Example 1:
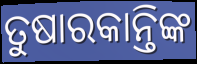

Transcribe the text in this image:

ତୁଷାରକାନ୍ତିଙ୍କ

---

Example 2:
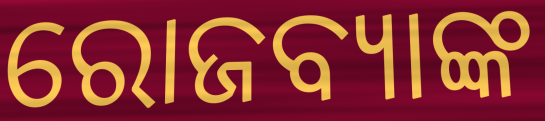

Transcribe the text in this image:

ରୋଜବ୍ୟାଙ୍କ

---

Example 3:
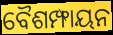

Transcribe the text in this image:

ବୈଶମ୍ଫାୟନ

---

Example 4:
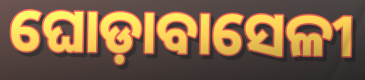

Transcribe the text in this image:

ଘୋଡ଼ାବାସେଳୀ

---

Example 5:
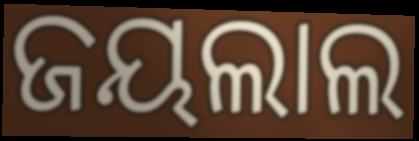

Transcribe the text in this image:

ଜୟଲାଲ